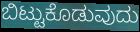
ಬಿಟ್ಟುಕೊಡುವುದು